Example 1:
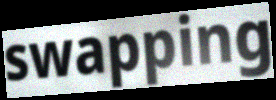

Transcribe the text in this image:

swapping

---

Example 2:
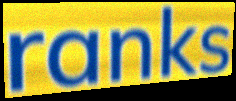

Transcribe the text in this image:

ranks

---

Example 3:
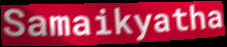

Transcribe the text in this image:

Samaikyatha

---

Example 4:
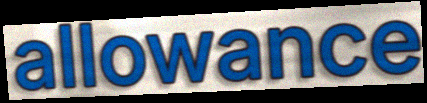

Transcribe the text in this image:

allowance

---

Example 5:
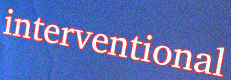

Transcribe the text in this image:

interventional